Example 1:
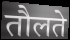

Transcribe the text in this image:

तौलते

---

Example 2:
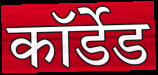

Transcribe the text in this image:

कॉर्डेड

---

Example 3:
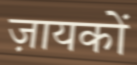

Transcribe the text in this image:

ज़ायकों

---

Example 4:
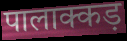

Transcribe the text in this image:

पालाक्कड़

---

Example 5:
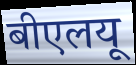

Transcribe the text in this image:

बीएलयू